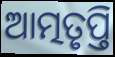
ଆତ୍ମତୃପ୍ତି